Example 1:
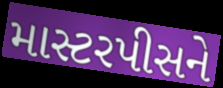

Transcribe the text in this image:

માસ્ટરપીસને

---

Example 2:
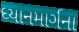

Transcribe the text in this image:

ધ્યાનમાર્ગના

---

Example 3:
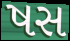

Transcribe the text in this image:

ષસ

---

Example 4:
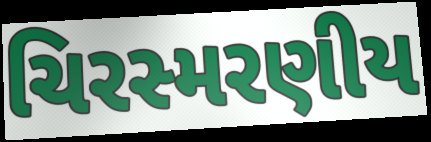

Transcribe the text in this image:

ચિરસ્મરણીય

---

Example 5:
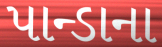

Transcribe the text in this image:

પાન્ડાના